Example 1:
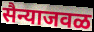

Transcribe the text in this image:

सैन्याजवळ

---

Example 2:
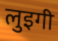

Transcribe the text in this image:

लुइगी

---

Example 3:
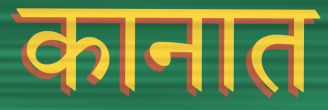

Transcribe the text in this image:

कानात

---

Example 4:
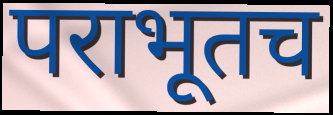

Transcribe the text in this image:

पराभूतच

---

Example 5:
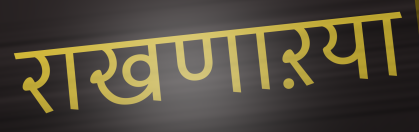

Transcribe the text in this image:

राखणाऱया